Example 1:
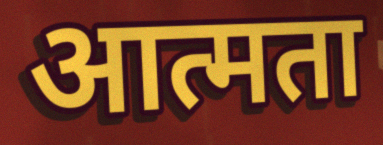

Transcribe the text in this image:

आत्मता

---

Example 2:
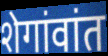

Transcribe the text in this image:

शेगांवांत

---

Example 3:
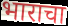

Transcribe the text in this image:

भाराचा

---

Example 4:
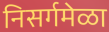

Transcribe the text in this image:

निसर्गमेळा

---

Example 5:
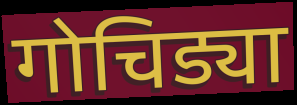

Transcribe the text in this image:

गोचिड्या